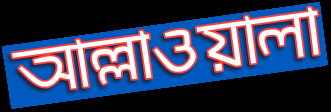
আল্লাওয়ালা